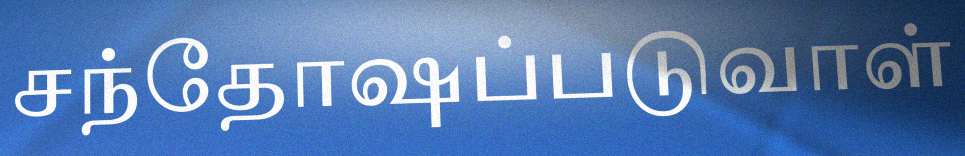
சந்தோஷப்படுவாள்